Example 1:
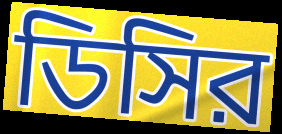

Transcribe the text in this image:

ডিসির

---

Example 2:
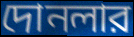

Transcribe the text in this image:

দোনলার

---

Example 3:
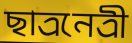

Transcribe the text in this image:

ছাত্রনেত্রী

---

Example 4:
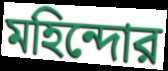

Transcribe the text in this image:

মহিন্দোর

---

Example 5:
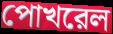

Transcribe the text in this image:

পোখরেল